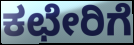
ಕಛೇರಿಗೆ